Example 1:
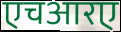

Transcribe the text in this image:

एचआरए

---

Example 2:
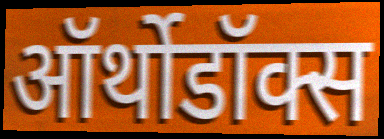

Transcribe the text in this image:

ऑर्थोडॉक्स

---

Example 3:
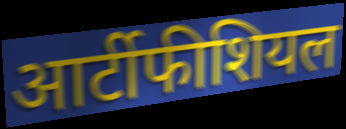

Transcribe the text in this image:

आर्टीफीशियल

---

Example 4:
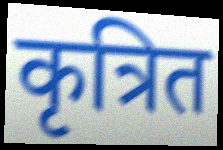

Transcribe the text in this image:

कृत्रित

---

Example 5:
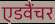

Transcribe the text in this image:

एडवैंचर